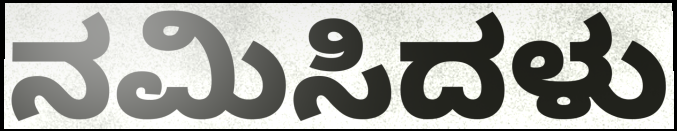
ನಮಿಸಿದಳು